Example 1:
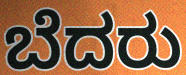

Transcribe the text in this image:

ಬೆದರು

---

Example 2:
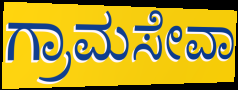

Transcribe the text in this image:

ಗ್ರಾಮಸೇವಾ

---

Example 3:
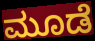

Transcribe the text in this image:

ಮೂಡೆ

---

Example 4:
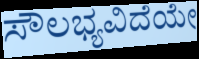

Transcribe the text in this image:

ಸೌಲಭ್ಯವಿದೆಯೇ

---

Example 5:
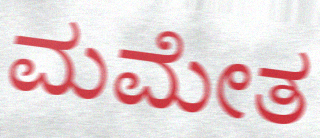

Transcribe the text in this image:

ಮಮೇತ